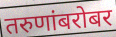
तरुणांबरोबर